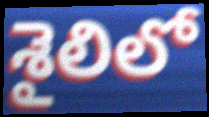
శైలిలో